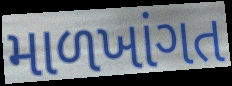
માળખાંગત